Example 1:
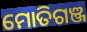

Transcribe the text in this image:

ମୋତିଗଞ୍ଜ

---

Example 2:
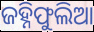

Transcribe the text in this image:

ଜହ୍ନିଫୁଲିଆ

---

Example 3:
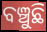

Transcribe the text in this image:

ବଞ୍ଚୁଛି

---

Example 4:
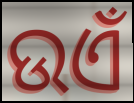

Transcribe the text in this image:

ଉଏଁ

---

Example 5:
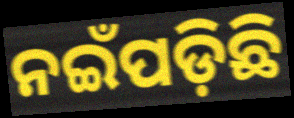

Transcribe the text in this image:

ନଇଁପଡ଼ିଛି